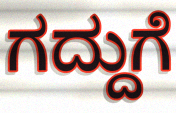
ಗದ್ದುಗೆ